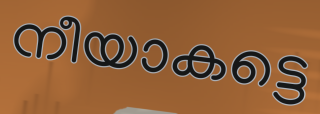
നീയാകട്ടെ